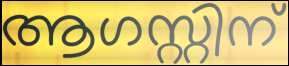
ആഗസ്റ്റിന്